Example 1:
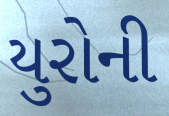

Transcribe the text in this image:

યુરોની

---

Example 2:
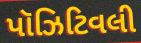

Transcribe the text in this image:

પૉઝિટિવલી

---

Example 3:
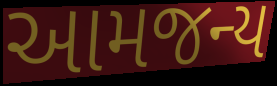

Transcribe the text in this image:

આમજન્ય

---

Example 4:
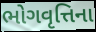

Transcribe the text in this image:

ભોગવૃત્તિના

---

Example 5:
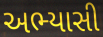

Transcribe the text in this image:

અભ્યાસી